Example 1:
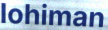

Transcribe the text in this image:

lohiman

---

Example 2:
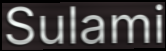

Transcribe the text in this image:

Sulami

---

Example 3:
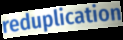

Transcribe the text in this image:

reduplication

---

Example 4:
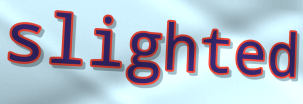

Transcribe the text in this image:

slighted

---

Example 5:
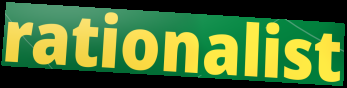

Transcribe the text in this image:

rationalist